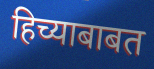
हिच्याबाबत